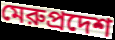
মেরুপ্রদেশ